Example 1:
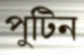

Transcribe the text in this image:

পুটিন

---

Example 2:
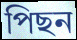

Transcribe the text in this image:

পিছন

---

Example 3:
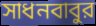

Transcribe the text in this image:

সাধনবাবুর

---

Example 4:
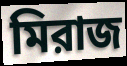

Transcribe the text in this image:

মিরাজ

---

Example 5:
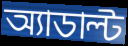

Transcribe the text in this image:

অ্যাডাল্ট